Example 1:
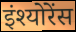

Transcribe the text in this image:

इंश्योरेंस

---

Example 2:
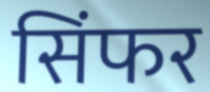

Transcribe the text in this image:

सिंफर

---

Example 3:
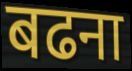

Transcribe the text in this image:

बढना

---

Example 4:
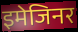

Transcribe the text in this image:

इमेजिनर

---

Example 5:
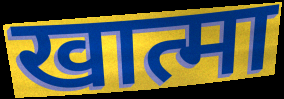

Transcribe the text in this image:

खात्मा